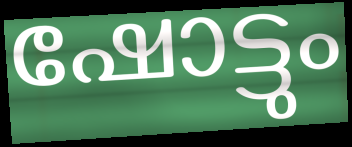
ഷോട്ടും